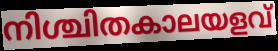
നിശ്ചിതകാലയളവ്